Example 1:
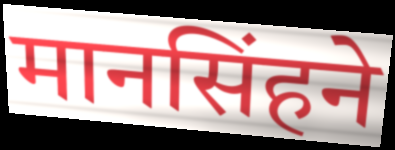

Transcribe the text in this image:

मानसिंहने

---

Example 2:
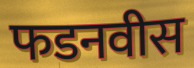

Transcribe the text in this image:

फडनवीस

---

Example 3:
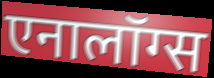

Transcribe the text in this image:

एनालॉग्स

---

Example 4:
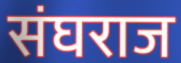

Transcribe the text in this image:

संघराज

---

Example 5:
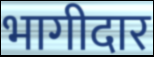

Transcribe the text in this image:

भागीदार